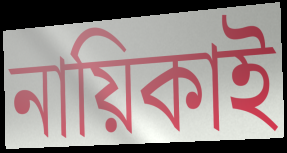
নায়িকাই